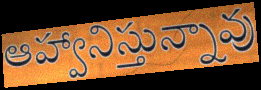
ఆహ్వానిస్తున్నావు